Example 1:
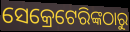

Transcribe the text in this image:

ସେକ୍ରେଟେରିଙ୍କଠାରୁ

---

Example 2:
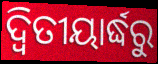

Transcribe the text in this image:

ଦ୍ଵିତୀୟାର୍ଦ୍ଧରୁ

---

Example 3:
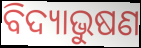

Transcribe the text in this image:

ବିଦ୍ୟାଭୁଷଣ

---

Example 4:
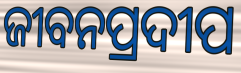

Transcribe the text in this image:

ଜୀବନପ୍ରଦୀପ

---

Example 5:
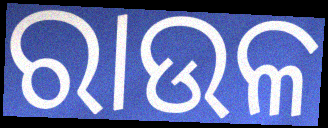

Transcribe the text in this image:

ରାଉଳ